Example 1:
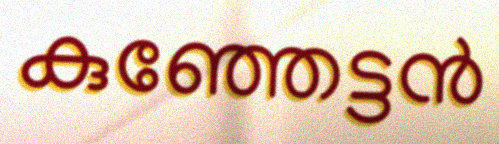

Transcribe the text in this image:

കുഞ്ഞേട്ടൻ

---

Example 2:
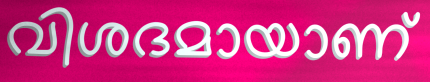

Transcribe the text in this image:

വിശദമായാണ്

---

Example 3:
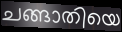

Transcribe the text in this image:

ചങ്ങാതിയെ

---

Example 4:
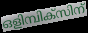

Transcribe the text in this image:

ഒളിമ്പിക്സിന്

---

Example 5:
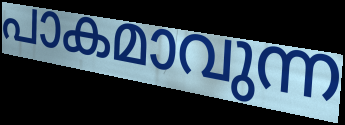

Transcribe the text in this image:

പാകമാവുന്ന